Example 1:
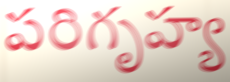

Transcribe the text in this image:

పరిగృహ్య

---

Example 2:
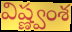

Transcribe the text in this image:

విష్ణ్వంశ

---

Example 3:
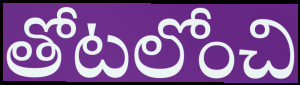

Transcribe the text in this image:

తోటలోంచి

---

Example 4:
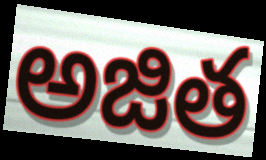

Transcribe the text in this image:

అజిత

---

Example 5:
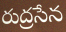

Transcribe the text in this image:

రుద్రసేన